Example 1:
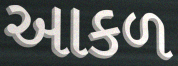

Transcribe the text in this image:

આકળ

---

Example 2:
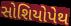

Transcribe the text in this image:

સોશિયોપેથ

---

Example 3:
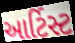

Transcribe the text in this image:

આર્ટિસ્ટ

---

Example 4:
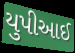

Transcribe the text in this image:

યુપીઆઈ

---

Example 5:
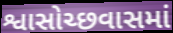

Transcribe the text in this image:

શ્વાસોચ્છવાસમાં